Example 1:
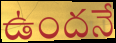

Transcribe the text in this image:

ఉందనే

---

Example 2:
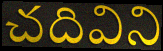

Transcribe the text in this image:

చదివిని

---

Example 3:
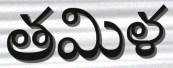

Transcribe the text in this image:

తమిళ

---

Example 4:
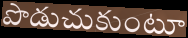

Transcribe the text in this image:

పొడుచుకుంటూ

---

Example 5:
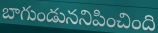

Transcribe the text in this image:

బాగుండుననిపించింది